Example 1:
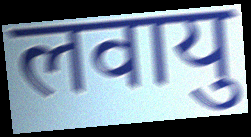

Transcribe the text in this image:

लवायु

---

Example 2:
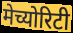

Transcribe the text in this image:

मेच्योरिटी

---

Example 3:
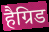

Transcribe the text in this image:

हैग्रिड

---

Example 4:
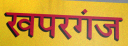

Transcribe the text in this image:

खपरगंज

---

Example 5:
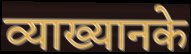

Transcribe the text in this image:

व्याख्यानके